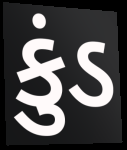
કુંડ